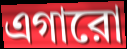
এগারো